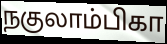
நகுலாம்பிகா